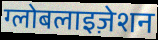
ग्लोबलाइज़ेशन